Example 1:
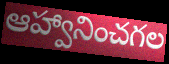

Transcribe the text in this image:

ఆహ్వానించగల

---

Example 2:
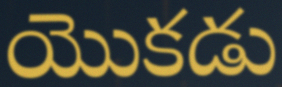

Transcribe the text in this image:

యొకడు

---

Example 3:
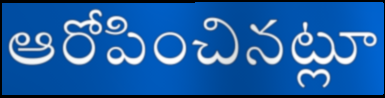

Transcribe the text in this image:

ఆరోపించినట్లూ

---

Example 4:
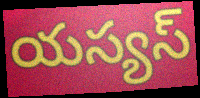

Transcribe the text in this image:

యస్యస్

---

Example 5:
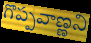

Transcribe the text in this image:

గొప్పవాణ్ణని